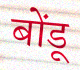
बोंडू